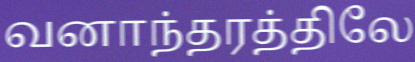
வனாந்தரத்திலே